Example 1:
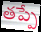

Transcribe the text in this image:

తప్పే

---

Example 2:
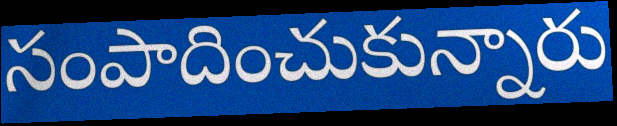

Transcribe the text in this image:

సంపాదించుకున్నారు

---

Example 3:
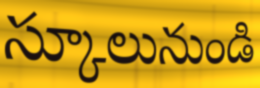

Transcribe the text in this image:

స్కూలునుండి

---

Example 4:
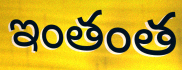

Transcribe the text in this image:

ఇంతంత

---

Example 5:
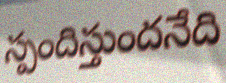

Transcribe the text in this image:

స్పందిస్తుందనేది